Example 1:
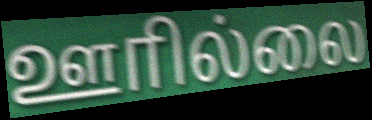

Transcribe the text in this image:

ஊரில்லை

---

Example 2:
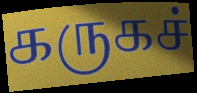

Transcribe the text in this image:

கருகச்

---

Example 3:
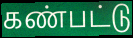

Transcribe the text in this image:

கண்பட்டு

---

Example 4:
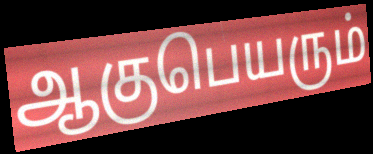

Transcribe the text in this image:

ஆகுபெயரும்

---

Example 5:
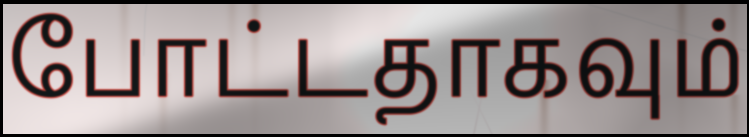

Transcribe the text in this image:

போட்டதாகவும்